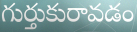
గుర్తుకురావడం